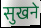
सुखने